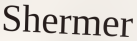
Shermer